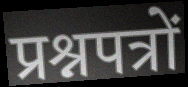
प्रश्नपत्रों